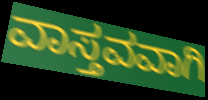
ವಾಸ್ತವವಾಗಿ